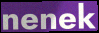
nenek